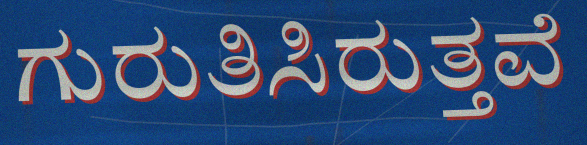
ಗುರುತಿಸಿರುತ್ತವೆ